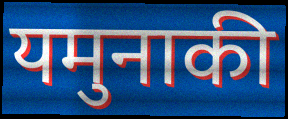
यमुनाकी